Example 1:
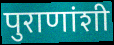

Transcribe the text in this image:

पुराणांशी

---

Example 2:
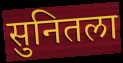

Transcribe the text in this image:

सुनितला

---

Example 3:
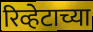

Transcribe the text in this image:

रिव्हेटाच्या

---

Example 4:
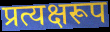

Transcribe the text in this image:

प्रत्यक्षरूप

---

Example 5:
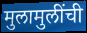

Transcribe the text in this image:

मुलामुलींची